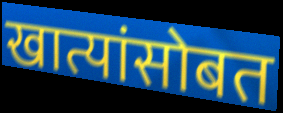
खात्यांसोबत